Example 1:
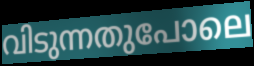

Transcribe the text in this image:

വിടുന്നതുപോലെ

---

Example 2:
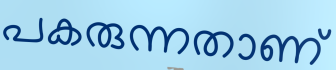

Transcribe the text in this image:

പകരുന്നതാണ്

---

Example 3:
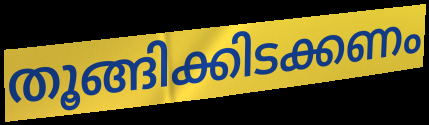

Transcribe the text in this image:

തൂങ്ങിക്കിടക്കണം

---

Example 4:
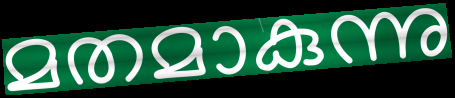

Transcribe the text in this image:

മതമാകുന്നു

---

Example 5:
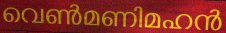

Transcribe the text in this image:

വെൺമണിമഹൻ